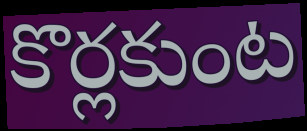
కొర్లకుంట